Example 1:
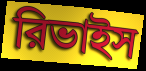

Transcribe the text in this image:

রিভাইস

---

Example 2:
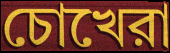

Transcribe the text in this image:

চোখেরা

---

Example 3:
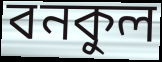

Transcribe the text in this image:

বনকুল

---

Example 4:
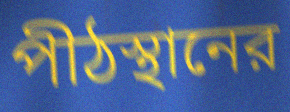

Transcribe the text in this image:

পীঠস্থানের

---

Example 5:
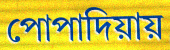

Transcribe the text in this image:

পোপাদিয়ায়